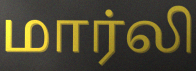
மார்லி